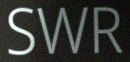
SWR